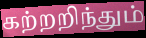
கற்றறிந்தும்